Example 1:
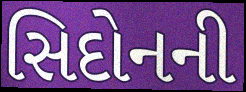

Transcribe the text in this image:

સિદોનની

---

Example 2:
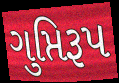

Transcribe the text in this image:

ગુપ્તિરૂપ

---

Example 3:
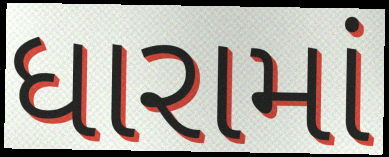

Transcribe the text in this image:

ધારામાં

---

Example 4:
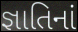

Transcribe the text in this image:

જ્ઞાતિનાં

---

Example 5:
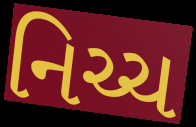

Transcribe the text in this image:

નિચ્ચ